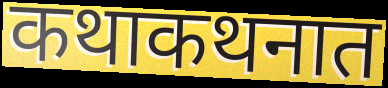
कथाकथनात